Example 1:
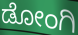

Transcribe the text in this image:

ಡೋಂಗಿ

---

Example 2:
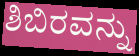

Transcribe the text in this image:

ಶಿಬಿರವನ್ನು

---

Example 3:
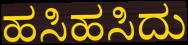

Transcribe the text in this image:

ಹಸಿಹಸಿದು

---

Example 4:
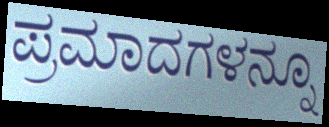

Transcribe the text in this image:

ಪ್ರಮಾದಗಳನ್ನೂ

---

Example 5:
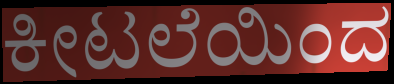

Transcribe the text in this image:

ಕೀಟಲೆಯಿಂದ